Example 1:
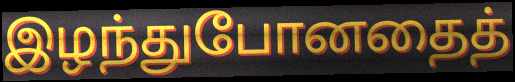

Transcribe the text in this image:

இழந்துபோனதைத்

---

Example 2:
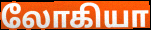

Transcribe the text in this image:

லோகியா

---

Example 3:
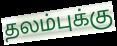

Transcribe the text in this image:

தலம்புக்கு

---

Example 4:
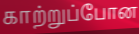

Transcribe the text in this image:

காற்றுப்போன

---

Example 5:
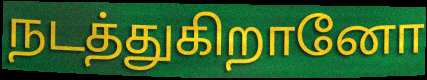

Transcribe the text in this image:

நடத்துகிறானோ